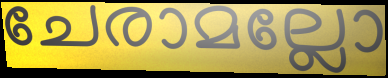
ചേരാമല്ലോ